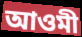
আওমী